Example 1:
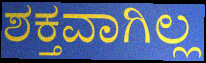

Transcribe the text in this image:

ಶಕ್ತವಾಗಿಲ್ಲ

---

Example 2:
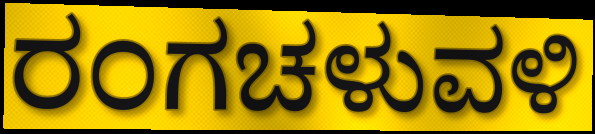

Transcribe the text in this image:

ರಂಗಚಳುವಳಿ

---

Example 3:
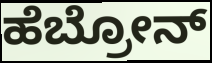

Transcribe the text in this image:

ಹೆಬ್ರೋನ್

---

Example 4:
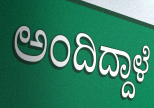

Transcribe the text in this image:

ಅಂದಿದ್ದಾಳೆ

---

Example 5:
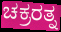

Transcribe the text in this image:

ಚಕ್ರರತ್ನ